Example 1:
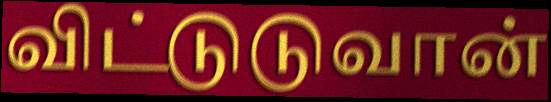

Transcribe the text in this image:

விட்டுடுவான்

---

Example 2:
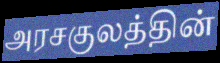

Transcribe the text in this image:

அரசகுலத்தின்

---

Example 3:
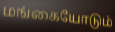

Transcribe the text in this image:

மங்கையோடும்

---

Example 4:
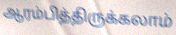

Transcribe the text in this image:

ஆரம்பித்திருக்கலாம்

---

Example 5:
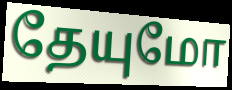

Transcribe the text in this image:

தேயுமோ